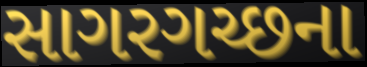
સાગરગચ્છના